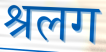
श्रलग